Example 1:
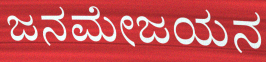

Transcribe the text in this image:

ಜನಮೇಜಯನ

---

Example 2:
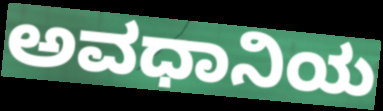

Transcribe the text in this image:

ಅವಧಾನಿಯ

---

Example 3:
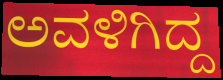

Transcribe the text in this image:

ಅವಳಿಗಿದ್ದ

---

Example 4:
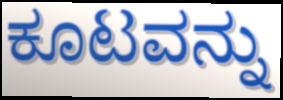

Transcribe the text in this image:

ಕೂಟವನ್ನು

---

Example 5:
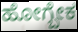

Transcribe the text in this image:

ಹೋಗ್ಬೇಕ